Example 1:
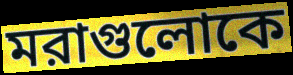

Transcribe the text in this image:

মরাগুলোকে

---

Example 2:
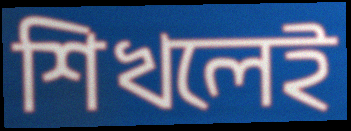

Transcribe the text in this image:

শিখলেই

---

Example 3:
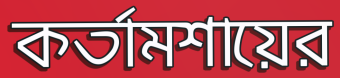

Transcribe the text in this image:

কর্তামশায়ের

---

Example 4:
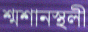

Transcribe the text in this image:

শ্মশানস্থলী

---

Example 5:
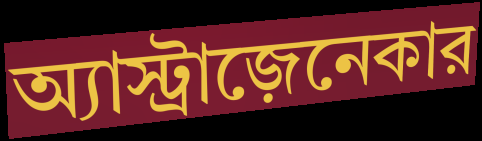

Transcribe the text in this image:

অ্যাস্ট্রাজ়েনেকার